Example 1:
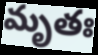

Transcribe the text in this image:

మృతః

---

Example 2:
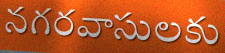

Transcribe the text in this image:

నగరవాసులకు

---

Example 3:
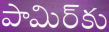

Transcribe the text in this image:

పామిర్‌కు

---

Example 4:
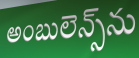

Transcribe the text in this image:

అంబులెన్స్‌ను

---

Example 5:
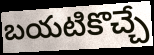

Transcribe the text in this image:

బయటికొచ్చే